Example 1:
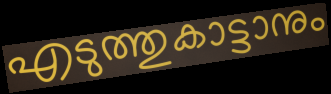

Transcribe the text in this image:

എടുത്തുകാട്ടാനും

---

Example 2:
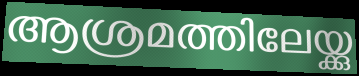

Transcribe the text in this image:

ആശ്രമത്തിലേയ്ക്കു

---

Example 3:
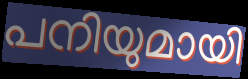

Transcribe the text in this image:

പനിയുമായി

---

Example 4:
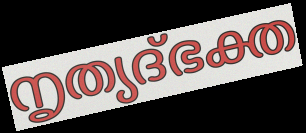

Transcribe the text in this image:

നൃത്യദ്ഭക്ത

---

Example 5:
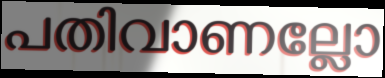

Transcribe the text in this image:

പതിവാണല്ലോ